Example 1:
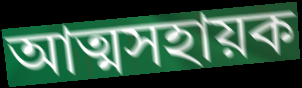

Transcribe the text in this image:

আত্মসহায়ক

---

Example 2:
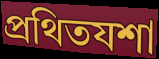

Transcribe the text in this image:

প্ৰথিতযশা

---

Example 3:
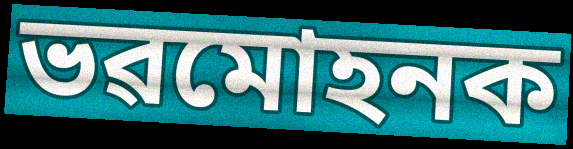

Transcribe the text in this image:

ভৱমোহনক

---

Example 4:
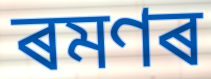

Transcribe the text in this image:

ৰমণৰ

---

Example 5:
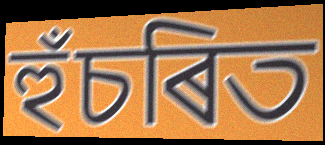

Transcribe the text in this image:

হুঁচৰিত